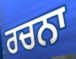
ਰਚਨਾ